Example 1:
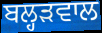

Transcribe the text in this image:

ਬਲ੍ਹੜਵਾਲ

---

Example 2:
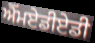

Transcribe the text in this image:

ਐੱਮਏਡੀਏਡੀ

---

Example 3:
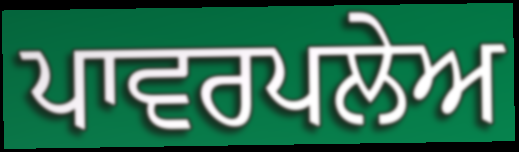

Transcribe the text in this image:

ਪਾਵਰਪਲੇਅ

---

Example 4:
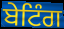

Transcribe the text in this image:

ਬੇਟਿੰਗ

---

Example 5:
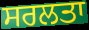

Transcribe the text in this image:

ਸਰਲਤਾ